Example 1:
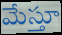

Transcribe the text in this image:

మేస్తూ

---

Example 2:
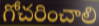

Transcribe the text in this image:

గోచరించాలి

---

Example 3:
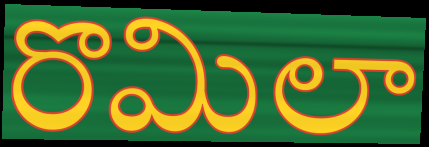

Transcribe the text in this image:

రొమిలా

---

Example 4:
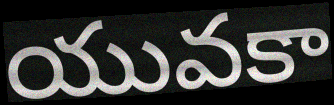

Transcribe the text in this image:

యువకా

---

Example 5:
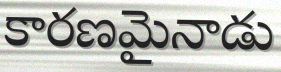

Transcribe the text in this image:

కారణమైనాడు